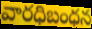
వారధిబంధన